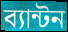
ব্যান্টন